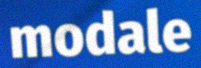
modale